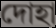
দোহা